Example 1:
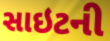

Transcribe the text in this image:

સાઇટની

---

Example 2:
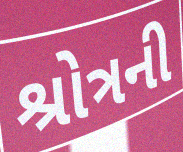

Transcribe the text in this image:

શ્રોત્રની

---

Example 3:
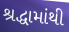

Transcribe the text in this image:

શ્રદ્ધામાંથી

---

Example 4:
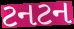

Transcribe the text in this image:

ટનટન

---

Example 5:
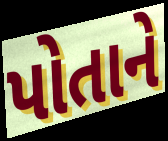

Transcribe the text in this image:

પોતાને